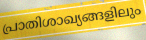
പ്രാതിശാഖ്യങ്ങളിലും